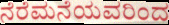
ನೆರೆಮನೆಯವರಿಂದ